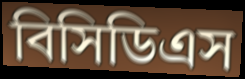
বিসিডিএস